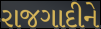
રાજગાદીને